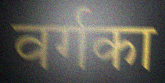
वर्गका